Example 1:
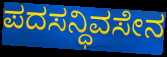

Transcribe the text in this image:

ಪದಸನ್ಧಿವಸೇನ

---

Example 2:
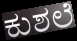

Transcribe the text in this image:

ಕುಶಲೆ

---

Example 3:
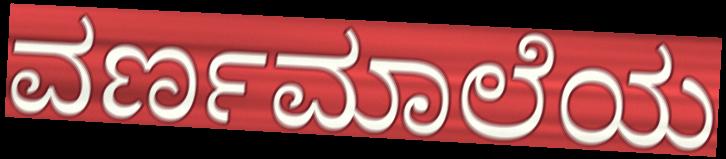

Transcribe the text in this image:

ವರ್ಣಮಾಲೆಯ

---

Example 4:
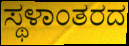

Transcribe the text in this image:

ಸ್ಥಳಾಂತರದ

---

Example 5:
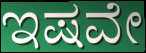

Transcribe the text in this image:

ಇಷವೇ